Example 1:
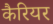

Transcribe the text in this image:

कैरियर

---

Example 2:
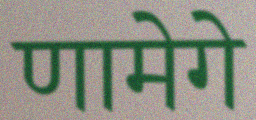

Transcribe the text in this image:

णामेगे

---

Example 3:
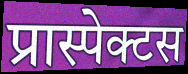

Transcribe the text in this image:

प्रास्पेक्टस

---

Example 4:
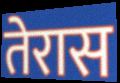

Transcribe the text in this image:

तेरास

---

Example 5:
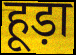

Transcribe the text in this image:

हूड़ा